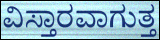
ವಿಸ್ತಾರವಾಗುತ್ತ